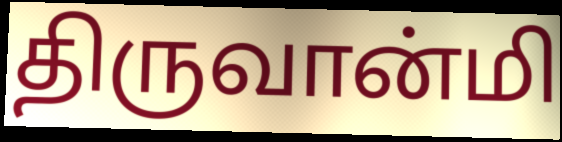
திருவான்மி